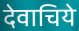
देवाचिये